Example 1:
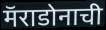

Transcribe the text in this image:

मॅराडोनाची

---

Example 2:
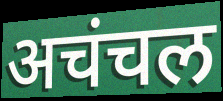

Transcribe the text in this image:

अचंचल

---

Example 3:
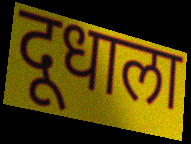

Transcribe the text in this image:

दूधाला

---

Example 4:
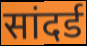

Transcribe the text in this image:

सांदर्ड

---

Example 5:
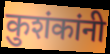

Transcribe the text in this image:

कुशंकांनी